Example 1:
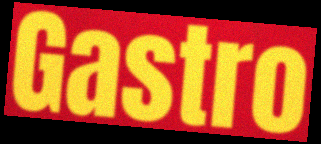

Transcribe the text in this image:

Gastro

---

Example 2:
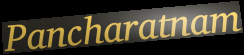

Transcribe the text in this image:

Pancharatnam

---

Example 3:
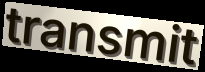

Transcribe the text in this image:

transmit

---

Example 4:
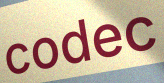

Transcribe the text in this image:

codec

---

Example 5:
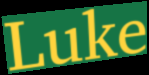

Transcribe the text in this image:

Luke